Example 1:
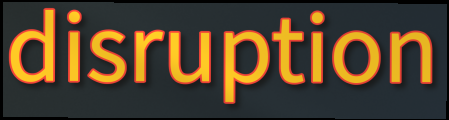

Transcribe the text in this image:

disruption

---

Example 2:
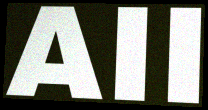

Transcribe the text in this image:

AII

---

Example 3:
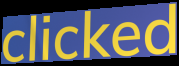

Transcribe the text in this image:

clicked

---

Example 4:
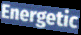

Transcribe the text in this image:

Energetic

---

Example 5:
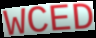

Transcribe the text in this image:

WCED